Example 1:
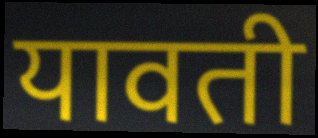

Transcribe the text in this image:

यावती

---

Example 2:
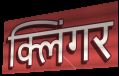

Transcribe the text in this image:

क्लिंगर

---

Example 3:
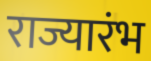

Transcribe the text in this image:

राज्यारंभ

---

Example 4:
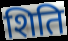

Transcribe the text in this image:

शिति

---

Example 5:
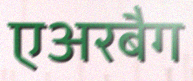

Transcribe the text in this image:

एअरबैग